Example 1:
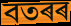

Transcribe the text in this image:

বতৰৰ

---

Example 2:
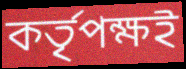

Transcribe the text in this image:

কৰ্তৃপক্ষই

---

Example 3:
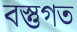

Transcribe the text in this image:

বস্তুগত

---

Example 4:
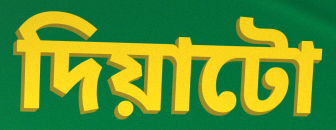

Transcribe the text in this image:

দিয়াটো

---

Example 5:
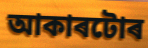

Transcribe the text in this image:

আকাৰটোৰ